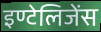
इण्टेलिजेंस